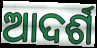
ଆଦର୍ଶ